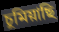
চুমিয়াছি